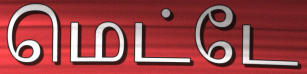
மெட்டே